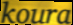
koura